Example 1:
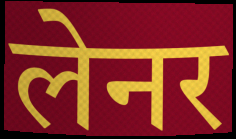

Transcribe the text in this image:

लेनर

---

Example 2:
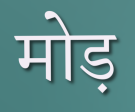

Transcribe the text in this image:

मोड़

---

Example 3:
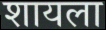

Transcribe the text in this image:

शायला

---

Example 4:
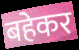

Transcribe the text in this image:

बहेकर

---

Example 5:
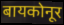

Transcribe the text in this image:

बायकोनूर